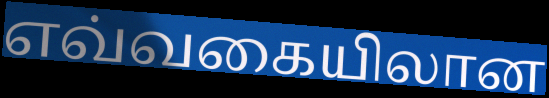
எவ்வகையிலான